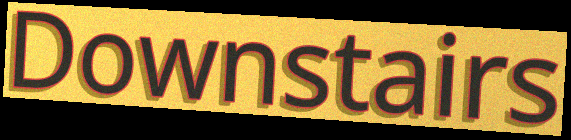
Downstairs